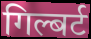
गिल्बर्ट